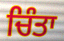
ਚਿੰਤਾ